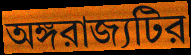
অঙ্গরাজ্যটির